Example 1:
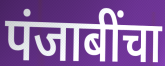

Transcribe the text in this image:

पंजाबींचा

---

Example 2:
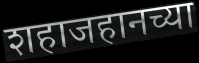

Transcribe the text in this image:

शहाजहानच्या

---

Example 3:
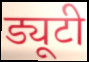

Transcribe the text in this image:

ड्यूटी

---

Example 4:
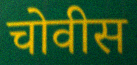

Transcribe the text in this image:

चोवीस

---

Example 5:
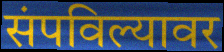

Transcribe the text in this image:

संपविल्यावर